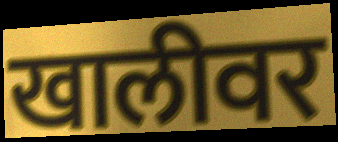
खालीवर